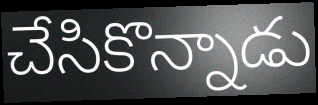
చేసికొన్నాడు